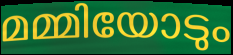
മമ്മിയോടും